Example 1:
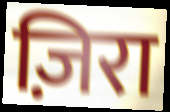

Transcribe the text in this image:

ज़िरा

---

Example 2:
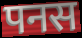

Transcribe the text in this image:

पनस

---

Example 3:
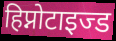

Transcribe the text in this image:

हिप्नोटाइज्ड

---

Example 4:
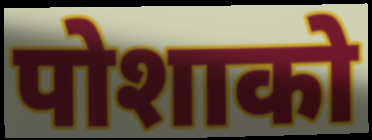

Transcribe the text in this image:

पोशाको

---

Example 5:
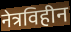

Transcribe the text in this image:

नेत्रविहीन